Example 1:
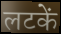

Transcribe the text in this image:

लटकें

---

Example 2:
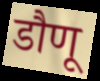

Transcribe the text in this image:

डौणू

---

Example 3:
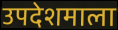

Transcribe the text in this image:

उपदेशमाला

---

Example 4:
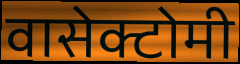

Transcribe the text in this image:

वासेक्टोमी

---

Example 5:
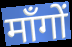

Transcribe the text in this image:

माँगों